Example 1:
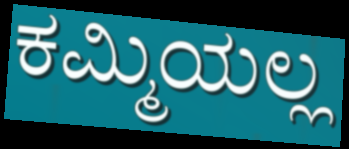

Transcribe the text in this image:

ಕಮ್ಮಿಯಲ್ಲ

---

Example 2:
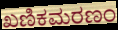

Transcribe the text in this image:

ಖಣಿಕಮರಣಂ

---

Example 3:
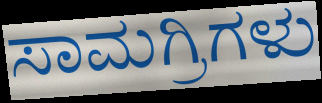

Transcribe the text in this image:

ಸಾಮಗ್ರಿಗಳು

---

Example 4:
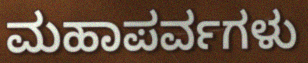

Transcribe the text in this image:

ಮಹಾಪರ್ವಗಳು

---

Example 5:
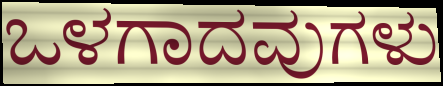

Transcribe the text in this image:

ಒಳಗಾದವುಗಳು